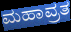
ಮಹಾವ್ರತ